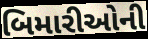
બિમારીઓની